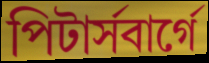
পিটার্সবার্গে